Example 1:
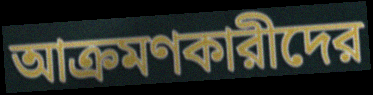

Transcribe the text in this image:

আক্রমণকারীদের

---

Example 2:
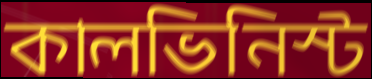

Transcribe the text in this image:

কালভিনিস্ট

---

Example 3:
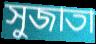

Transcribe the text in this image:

সুজাতা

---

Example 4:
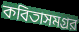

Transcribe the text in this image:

কবিতাসমগ্রর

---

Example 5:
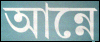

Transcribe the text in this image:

আন্নে